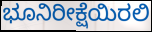
ಭೂನಿರೀಕ್ಷೆಯಿರಲಿ